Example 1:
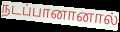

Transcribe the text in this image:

நடப்பானானால்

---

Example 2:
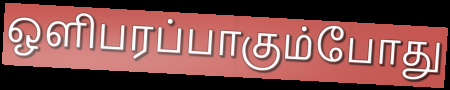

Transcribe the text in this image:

ஒளிபரப்பாகும்போது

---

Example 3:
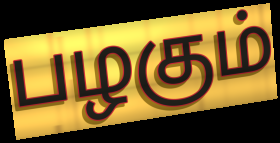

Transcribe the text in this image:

பழகும்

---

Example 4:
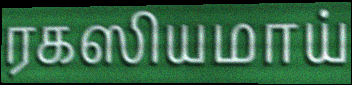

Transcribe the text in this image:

ரகஸியமாய்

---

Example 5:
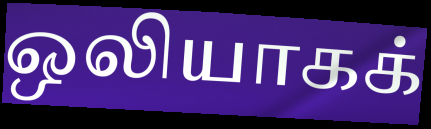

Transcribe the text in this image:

ஒலியாகக்